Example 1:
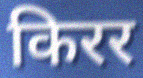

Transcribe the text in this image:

किरर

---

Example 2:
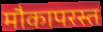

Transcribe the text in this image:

मौकापरस्त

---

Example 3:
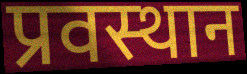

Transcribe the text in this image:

प्रवस्थान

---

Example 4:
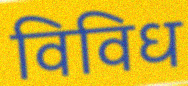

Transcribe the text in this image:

विविध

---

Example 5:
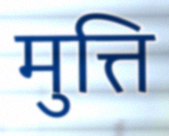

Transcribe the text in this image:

मुत्ति